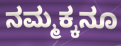
ನಮ್ಮಕ್ಕನೂ